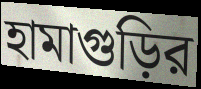
হামাগুড়ির